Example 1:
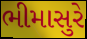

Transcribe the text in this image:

ભીમાસુરે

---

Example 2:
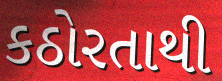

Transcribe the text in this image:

કઠોરતાથી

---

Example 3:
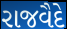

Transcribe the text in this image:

રાજવૈદે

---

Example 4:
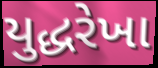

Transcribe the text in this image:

યુદ્ધરેખા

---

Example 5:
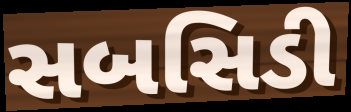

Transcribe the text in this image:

સબસિડી